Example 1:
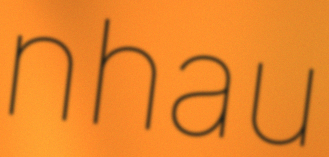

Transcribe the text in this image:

nhau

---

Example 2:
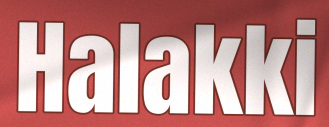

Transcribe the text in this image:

Halakki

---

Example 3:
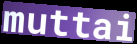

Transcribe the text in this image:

muttai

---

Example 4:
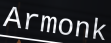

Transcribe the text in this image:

Armonk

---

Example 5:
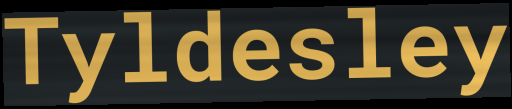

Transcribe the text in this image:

Tyldesley